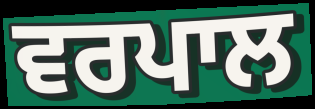
ਵਰਪਾਲ